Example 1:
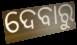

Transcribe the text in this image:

ଦେବାରୁ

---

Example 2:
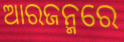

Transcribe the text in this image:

ଆରଜନ୍ମରେ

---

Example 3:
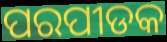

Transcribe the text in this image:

ପରପୀଡକ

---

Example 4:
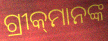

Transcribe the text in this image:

ଗ୍ରୀକ୍‌ମାନଙ୍କ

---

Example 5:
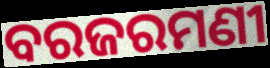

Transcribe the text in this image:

ବରଜରମଣୀ